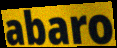
abaro